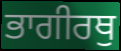
ਭਾਗੀਰਥੁ